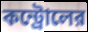
কন্ট্রোলের